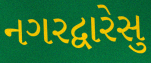
નગરદ્વારેસુ